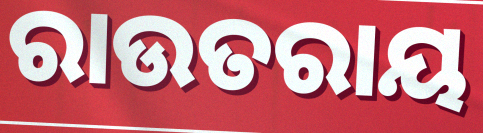
ରାଉତରାୟ